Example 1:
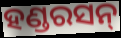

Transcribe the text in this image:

ହଣ୍ଡରସନ୍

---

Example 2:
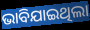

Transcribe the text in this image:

ଭାବିଯାଇଥିଲା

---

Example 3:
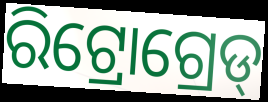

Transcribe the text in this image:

ରିଟ୍ରୋଗ୍ରେଡ୍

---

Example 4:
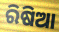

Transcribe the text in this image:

ରିଷିଆ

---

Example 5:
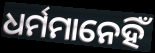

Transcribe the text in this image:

ଧର୍ମମାନେହିଁ